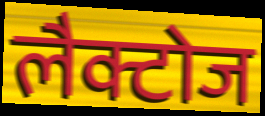
लैक्टोज